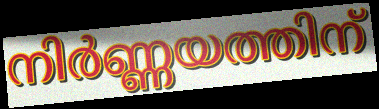
നിർണ്ണയത്തിന്